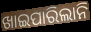
ଖାଇପାରିଲାନି